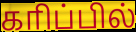
கரிப்பில்